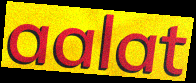
aalat